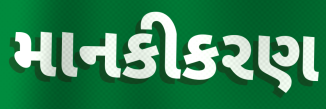
માનકીકરણ